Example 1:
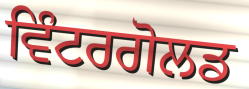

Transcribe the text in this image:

ਵਿੰਟਰਗੋਲਡ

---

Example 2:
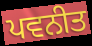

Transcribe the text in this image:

ਪਵਨੀਤ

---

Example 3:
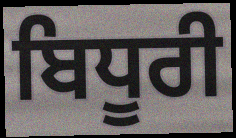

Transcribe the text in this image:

ਬਿਧੂਰੀ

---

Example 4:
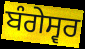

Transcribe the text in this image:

ਬੰਗੇਸ੍ਵਰ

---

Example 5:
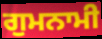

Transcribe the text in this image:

ਗੁਮਨਾਮੀ